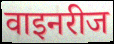
वाइनरीज